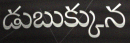
డుబుక్కున